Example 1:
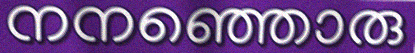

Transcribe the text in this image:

നനഞ്ഞൊരു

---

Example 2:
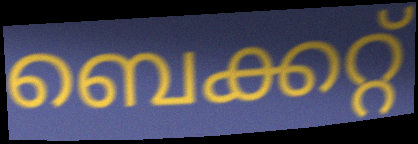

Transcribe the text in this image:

ബെക്കറ്റ്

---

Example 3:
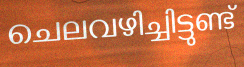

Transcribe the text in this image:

ചെലവഴിച്ചിട്ടുണ്ട്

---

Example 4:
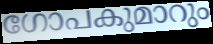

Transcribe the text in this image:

ഗോപകുമാറും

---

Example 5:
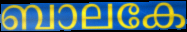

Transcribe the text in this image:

ബാലകേ